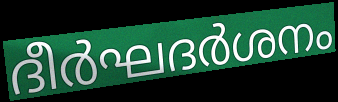
ദീർഘദർശനം